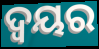
ଦ୍ଵୟର